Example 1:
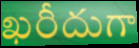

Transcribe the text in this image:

ఖరీదుగా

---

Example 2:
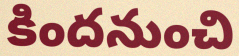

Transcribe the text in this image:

కిందనుంచి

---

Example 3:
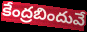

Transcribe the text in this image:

కేంద్రబిందువే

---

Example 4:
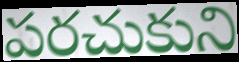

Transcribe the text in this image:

పరచుకుని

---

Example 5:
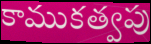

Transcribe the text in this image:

కాముకత్వపు